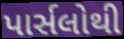
પાર્સલોથી